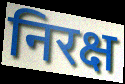
निरक्ष